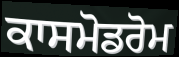
ਕਾਸਮੋਡਰੋਮ